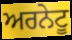
ਅਰਨੇਟੂ